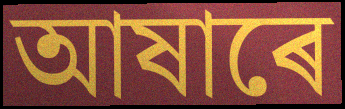
আষাৰে